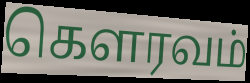
கெளரவம்